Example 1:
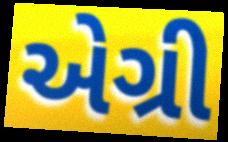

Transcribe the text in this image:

એગ્રી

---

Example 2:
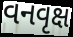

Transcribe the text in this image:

વનવૃક્ષ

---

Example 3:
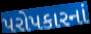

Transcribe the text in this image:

પરોપકારનાં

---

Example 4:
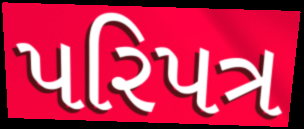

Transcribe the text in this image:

પરિપત્ર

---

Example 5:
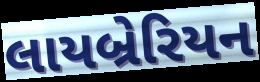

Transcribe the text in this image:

લાયબ્રેરિયન